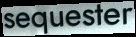
sequester